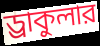
ড্রাকুলার